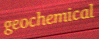
geochemical